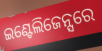
ଇଣ୍ଟେଲିଜେନ୍ସରେ